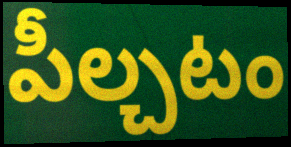
పీల్చటం